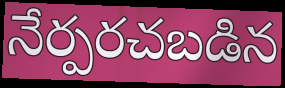
నేర్పరచబడిన